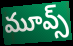
మూవ్స్